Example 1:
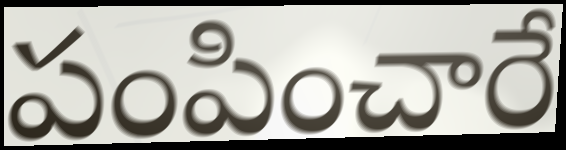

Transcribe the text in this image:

పంపించారే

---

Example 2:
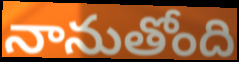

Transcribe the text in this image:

నానుతోంది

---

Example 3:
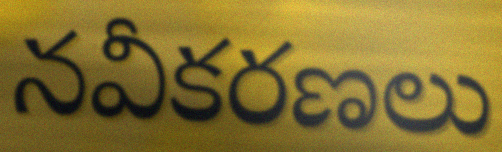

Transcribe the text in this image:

నవీకరణలు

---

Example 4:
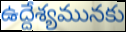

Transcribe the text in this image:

ఉద్దేశ్యమునకు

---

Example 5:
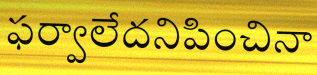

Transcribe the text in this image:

ఫర్వాలేదనిపించినా